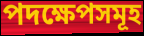
পদক্ষেপসমূহ